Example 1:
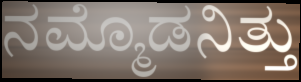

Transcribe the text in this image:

ನಮ್ಮೊಡನಿತ್ತು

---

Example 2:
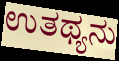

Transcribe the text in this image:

ಉತಥ್ಯನು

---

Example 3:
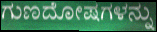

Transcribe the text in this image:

ಗುಣದೋಷಗಳನ್ನು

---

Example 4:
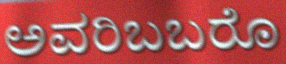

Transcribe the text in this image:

ಅವರಿಬಬರೊ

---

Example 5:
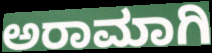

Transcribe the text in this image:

ಅರಾಮಾಗಿ